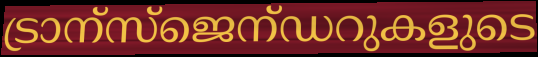
ട്രാന്സ്ജെന്ഡറുകളുടെ